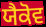
ਯੈਕੋਵ